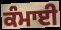
ਕੰਮਾਈ